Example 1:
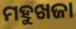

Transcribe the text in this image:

ମହୁଖଜା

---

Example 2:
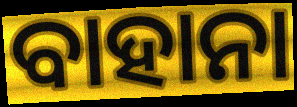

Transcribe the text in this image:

ବାହାନା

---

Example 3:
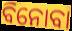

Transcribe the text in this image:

ବିନୋବା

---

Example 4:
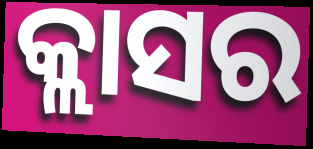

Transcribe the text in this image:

କ୍ଲାସର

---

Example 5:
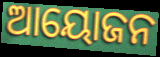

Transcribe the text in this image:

ଆୟୋଜନ